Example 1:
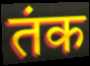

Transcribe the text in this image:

तंक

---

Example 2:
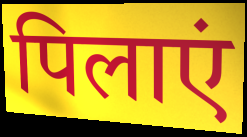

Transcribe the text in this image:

पिलाएं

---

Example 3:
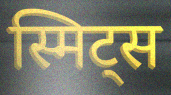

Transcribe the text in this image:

स्मिट्स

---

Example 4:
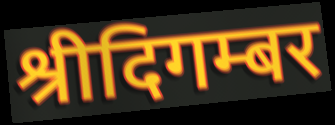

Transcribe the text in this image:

श्रीदिगम्बर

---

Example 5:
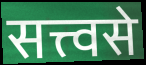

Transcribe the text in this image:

सत्त्वसे